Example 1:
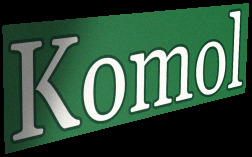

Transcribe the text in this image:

Komol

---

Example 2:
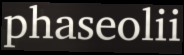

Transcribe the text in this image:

phaseolii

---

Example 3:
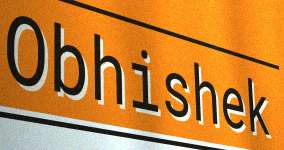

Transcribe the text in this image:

Obhishek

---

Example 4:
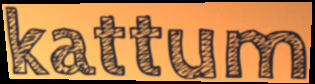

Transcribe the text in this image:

kattum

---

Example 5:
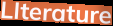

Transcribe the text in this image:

LIterature